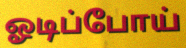
ஓடிப்போய்